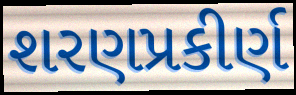
શરણપ્રકીર્ણ